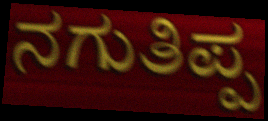
ನಗುತಿಪ್ಪ